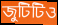
জুটিটিও